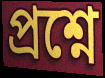
প্রশ্নে